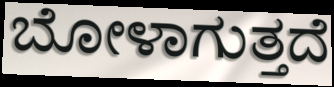
ಬೋಳಾಗುತ್ತದೆ